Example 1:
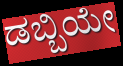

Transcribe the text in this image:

ಡಬ್ಬಿಯೇ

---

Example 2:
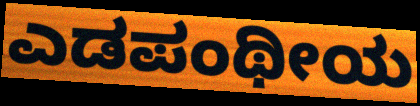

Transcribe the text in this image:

ಎಡಪಂಥೀಯ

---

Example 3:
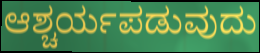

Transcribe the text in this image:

ಆಶ್ಚರ್ಯಪಡುವುದು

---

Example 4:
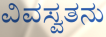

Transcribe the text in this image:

ವಿವಸ್ವತನು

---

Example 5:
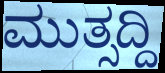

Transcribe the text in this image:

ಮುತ್ಸದ್ದಿ